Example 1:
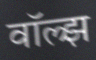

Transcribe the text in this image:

वॉल्झ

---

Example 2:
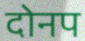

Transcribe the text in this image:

दोनप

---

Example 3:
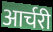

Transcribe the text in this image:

आर्चरी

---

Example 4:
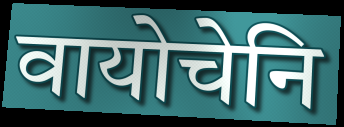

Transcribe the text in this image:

वायोचेनि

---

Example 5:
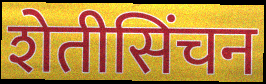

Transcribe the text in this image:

शेतीसिंचन